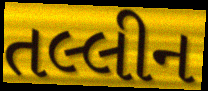
તલ્લીન